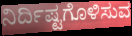
ನಿರ್ದಿಷ್ಟಗೊಳಿಸುವ